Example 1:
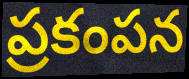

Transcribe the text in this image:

ప్రకంపన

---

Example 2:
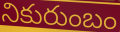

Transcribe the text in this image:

నికురుంబం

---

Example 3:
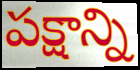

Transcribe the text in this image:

పక్షాన్ని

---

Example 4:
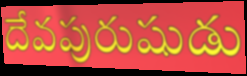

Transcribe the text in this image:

దేవపురుషుడు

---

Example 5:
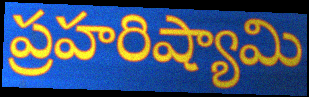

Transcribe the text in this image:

ప్రహరిష్యామి